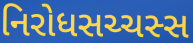
નિરોધસચ્ચસ્સ